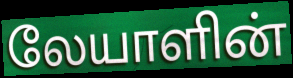
லேயாளின்